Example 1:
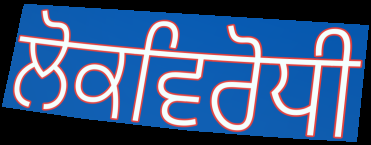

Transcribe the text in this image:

ਲੋਕਵਿਰੋਧੀ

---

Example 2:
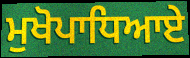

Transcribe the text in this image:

ਮੁਖੋਪਾਧਿਆਏ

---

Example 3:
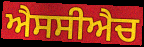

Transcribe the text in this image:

ਐਸਸੀਐਚ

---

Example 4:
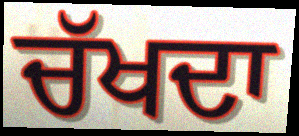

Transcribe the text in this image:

ਚੱਖਦਾ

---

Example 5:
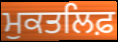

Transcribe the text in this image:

ਮੁਕਤਲਿਫ਼